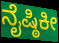
ನೈಷ್ಠಿಕೀ